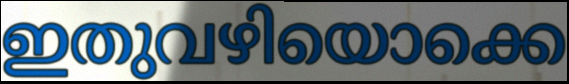
ഇതുവഴിയൊക്കെ